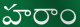
హరాం